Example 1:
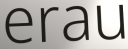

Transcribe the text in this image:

erau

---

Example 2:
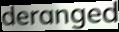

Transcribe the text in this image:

deranged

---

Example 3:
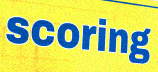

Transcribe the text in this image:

scoring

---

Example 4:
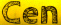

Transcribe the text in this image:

Cen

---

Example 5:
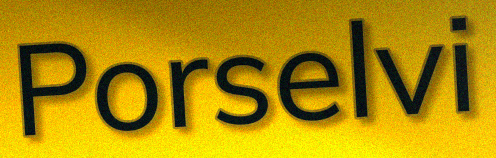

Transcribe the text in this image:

Porselvi